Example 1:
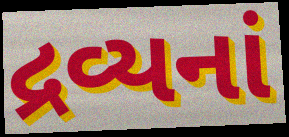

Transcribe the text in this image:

દ્રવ્યનાં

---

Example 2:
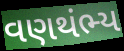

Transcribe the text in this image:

વણથંભ્ય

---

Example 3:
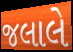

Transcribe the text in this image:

જલાલે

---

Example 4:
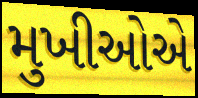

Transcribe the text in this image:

મુખીઓએ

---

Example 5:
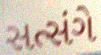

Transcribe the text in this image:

સત્સંગે